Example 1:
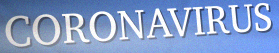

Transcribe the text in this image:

CORONAVIRUS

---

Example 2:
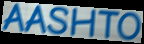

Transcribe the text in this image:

AASHTO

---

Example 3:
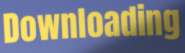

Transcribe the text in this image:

Downloading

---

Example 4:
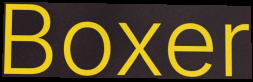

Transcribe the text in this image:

Boxer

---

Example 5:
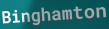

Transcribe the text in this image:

Binghamton